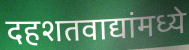
दहशतवाद्यांमध्ये